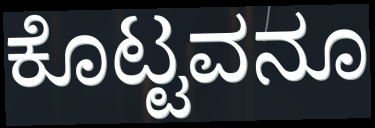
ಕೊಟ್ಟವನೂ